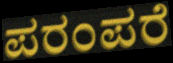
ಪರಂಪರೆ